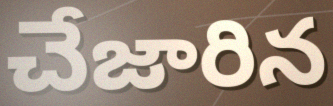
చేజారిన